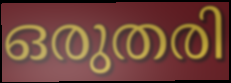
ഒരുതരി